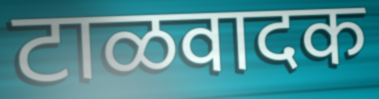
टाळवादक